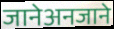
जानेअनजाने